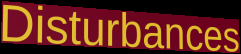
Disturbances